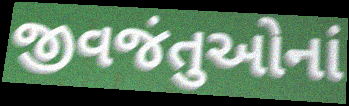
જીવજંતુઓનાં